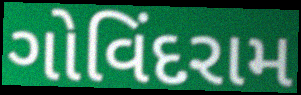
ગોવિંદરામ